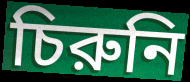
চিরুনি